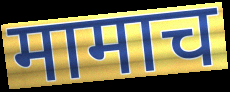
मामाच